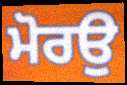
ਮੋਰਉ